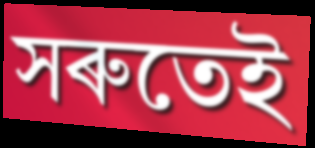
সৰুতেই